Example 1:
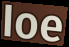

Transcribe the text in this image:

Ioe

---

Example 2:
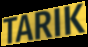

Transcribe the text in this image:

TARIK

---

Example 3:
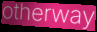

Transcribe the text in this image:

otherway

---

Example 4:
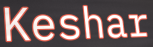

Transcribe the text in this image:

Keshar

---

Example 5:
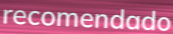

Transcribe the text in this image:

recomendado